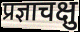
प्रज्ञाचक्षु